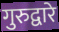
गुरुद्वारे